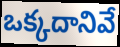
ఒక్కదానివే